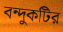
বন্দুকটির